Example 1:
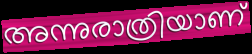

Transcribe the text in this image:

അന്നുരാത്രിയാണ്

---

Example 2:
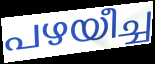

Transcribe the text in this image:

പഴയീച്ച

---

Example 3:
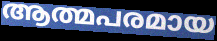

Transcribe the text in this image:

ആത്മപരമായ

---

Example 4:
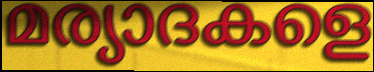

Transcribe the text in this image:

മര്യാദകളെ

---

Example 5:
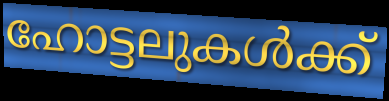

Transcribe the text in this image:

ഹോട്ടലുകൾക്ക്